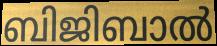
ബിജിബാൽ